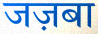
जज़बा